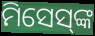
ମିସେସ୍‌ଙ୍କ